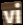
vi